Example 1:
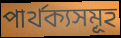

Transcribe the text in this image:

পাৰ্থক্যসমূহ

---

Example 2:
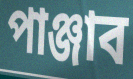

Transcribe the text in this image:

পাঞ্জাব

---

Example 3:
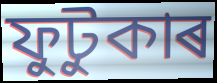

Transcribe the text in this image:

ফুটুকাৰ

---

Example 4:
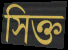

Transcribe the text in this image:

সিক্ত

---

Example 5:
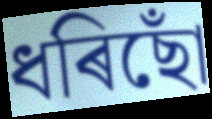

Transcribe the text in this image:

ধৰিছোঁ